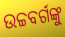
ଉଚ୍ଚବର୍ଗଙ୍କୁ